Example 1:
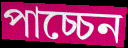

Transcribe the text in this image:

পাচ্চেন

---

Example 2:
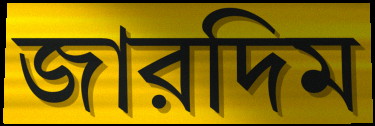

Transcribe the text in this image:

জারদিম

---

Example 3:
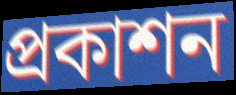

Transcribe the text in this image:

প্রকাশন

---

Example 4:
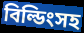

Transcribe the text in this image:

বিল্ডিংসহ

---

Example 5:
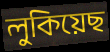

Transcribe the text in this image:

লুকিয়েছ